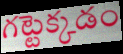
గట్టెక్కడం